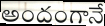
అందంగానే